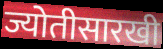
ज्योतीसारखी